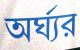
অর্ঘ্যর